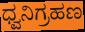
ಧ್ವನಿಗ್ರಹಣ